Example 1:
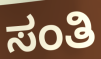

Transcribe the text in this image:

ಸಂತಿ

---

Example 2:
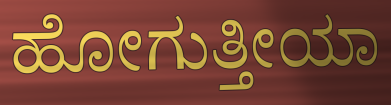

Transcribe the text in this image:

ಹೋಗುತ್ತೀಯಾ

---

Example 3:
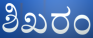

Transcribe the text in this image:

ಶಿಖರಂ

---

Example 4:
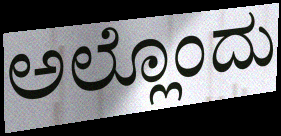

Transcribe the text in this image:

ಅಲ್ಲೊಂದು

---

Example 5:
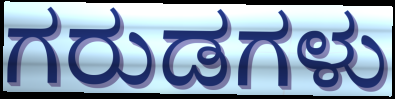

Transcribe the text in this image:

ಗರುಡಗಳು